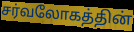
சர்வலோகத்தின்